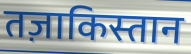
तज़ाकिस्तान